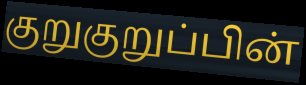
குறுகுறுப்பின்